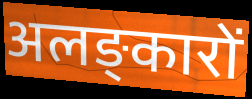
अलङ्कारों